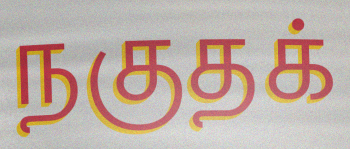
நகுதக்